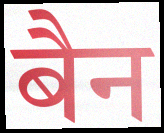
बैन